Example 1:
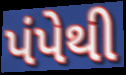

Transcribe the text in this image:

પંપેથી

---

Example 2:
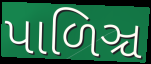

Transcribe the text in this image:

પાળિઞ્ચ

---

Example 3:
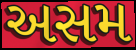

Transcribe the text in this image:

અસમ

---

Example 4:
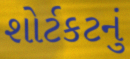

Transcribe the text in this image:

શોર્ટકટનું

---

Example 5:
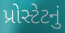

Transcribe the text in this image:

પ્રોસ્ટેટનું